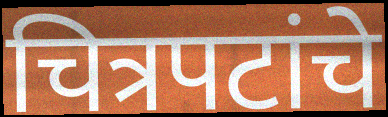
चित्रपटांचे